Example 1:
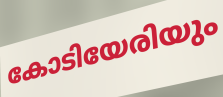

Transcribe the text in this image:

കോടിയേരിയും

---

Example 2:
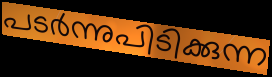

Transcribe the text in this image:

പടർന്നുപിടിക്കുന്ന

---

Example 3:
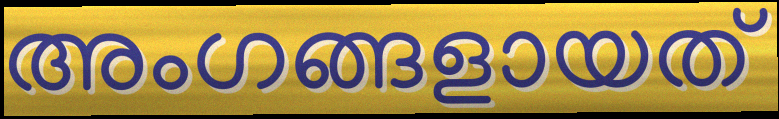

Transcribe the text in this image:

അംഗങ്ങളായത്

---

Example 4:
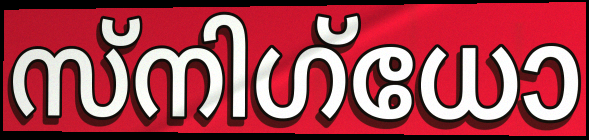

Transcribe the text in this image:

സ്നിഗ്ധോ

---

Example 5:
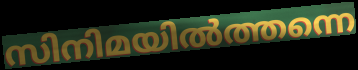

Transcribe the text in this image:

സിനിമയിൽത്തന്നെ